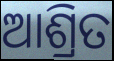
ଆଶ୍ରିତ